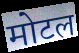
मोटल